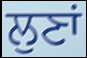
ਲੁਣਾਂ